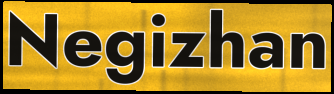
Negizhan